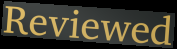
Reviewed